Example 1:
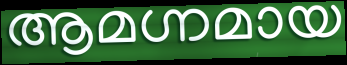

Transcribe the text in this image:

ആമഗ്നമായ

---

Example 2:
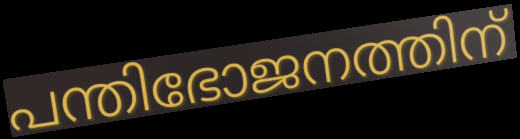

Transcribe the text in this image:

പന്തിഭോജനത്തിന്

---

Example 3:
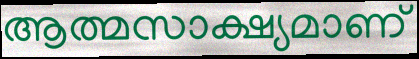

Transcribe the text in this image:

ആത്മസാക്ഷ്യമാണ്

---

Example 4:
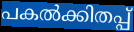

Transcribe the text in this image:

പകൽക്കിതപ്പ്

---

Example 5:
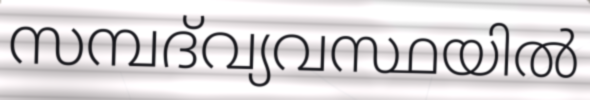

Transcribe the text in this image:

സമ്പദ്‌വ്യവസ്ഥയിൽ